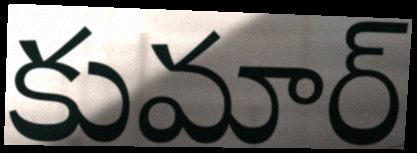
కుమార్